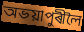
অভয়াপুৰীলৈ